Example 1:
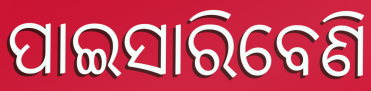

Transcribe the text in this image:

ପାଇସାରିବେଣି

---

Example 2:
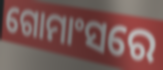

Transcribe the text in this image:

ଗୋମାଂସରେ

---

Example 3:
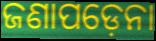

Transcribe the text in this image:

ଜଣାପଡ଼େନା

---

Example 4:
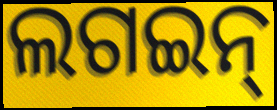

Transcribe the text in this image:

ଲଗଇନ୍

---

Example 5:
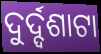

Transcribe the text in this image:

ଦୁର୍ଦ୍ଦଶାଟା